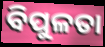
ବିପୁଳତା